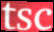
tsc